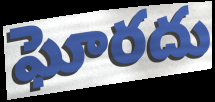
ఘోరదు